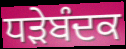
ਧੜੇਬੰਦਕ